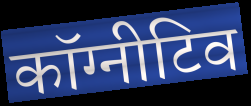
कॉग्‍नीटिव